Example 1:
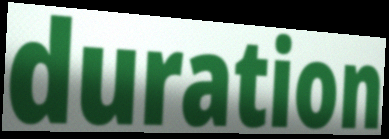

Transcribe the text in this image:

duration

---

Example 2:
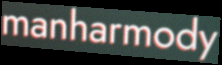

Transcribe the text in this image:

manharmody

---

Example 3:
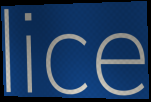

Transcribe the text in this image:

lice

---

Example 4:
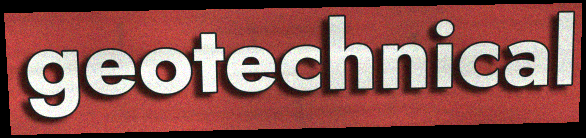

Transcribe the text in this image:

geotechnical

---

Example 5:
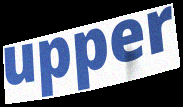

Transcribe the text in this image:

upper